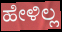
ಹೇಳಿಲ್ಲ